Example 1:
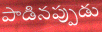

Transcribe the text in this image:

పాడినప్పుడు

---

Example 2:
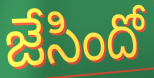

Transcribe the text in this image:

జేసిందో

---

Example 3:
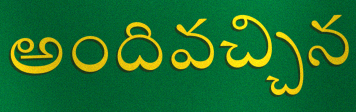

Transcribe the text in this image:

అందివచ్చిన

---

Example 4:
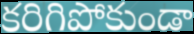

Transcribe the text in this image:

కరిగిపోకుండా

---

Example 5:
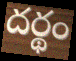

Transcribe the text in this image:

దర్థం